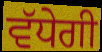
ਵੱਧੇਗੀ